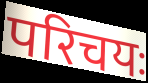
परिचयः